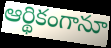
ఆర్థికంగానూ